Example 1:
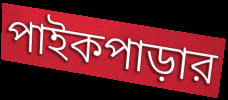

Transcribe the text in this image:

পাইকপাড়ার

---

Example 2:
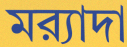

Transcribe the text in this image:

মর‍্যাদা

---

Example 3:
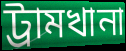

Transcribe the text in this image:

ট্রামখানা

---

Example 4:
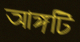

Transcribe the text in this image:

আঙ্গটি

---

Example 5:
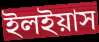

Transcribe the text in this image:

ইলইয়াস